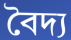
বৈদ্য